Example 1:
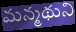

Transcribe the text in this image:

మన్మథుని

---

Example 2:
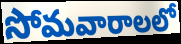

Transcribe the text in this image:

సోమవారాలలో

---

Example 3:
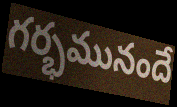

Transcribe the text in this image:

గర్భమునందే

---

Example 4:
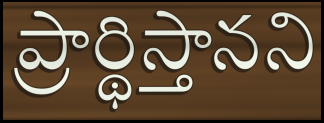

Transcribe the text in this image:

ప్రార్థిస్తానని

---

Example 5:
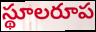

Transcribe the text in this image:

స్థూలరూప